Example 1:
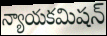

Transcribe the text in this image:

న్యాయకమిషన్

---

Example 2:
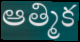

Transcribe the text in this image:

ఆత్మిక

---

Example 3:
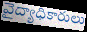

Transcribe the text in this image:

వైద్యాధికారులు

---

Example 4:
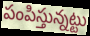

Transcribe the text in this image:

పంపిస్తున్నట్టు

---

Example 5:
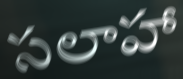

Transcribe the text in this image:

సలాహా